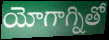
యోగాగ్నితో